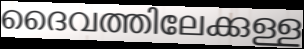
ദൈവത്തിലേക്കുള്ള